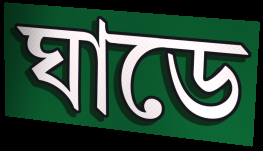
ঘাডে